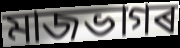
মাজভাগৰ